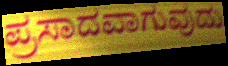
ಪ್ರಸಾದವಾಗುವುದು